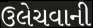
ઉલેચવાની